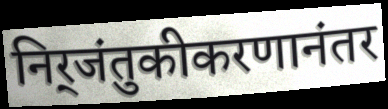
निर्जंतुकीकरणानंतर